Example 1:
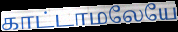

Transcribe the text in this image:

காட்டாமலேயே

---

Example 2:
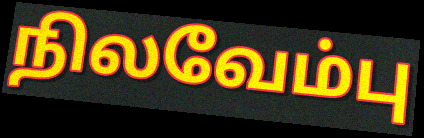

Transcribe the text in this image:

நிலவேம்பு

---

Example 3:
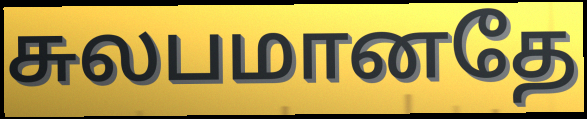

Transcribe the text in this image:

சுலபமானதே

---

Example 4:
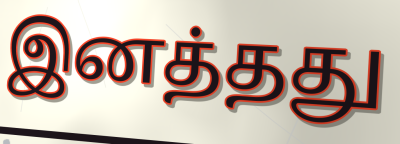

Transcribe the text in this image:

இனத்தது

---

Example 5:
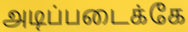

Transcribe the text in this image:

அடிப்படைக்கே